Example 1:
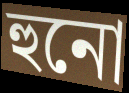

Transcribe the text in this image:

হুনো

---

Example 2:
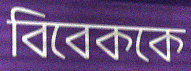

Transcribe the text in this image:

বিবেককে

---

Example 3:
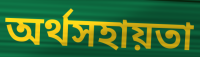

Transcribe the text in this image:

অর্থসহায়তা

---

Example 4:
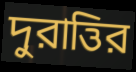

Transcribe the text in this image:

দুরাত্তির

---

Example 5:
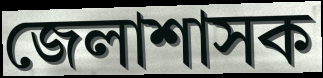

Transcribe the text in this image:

জেলাশাসক